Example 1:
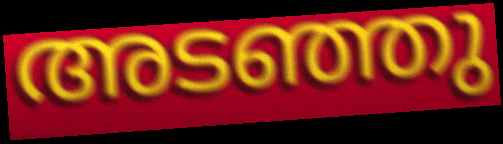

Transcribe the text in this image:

അടഞ്ഞു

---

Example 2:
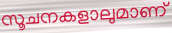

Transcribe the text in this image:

സൂചനകളാലുമാണ്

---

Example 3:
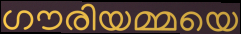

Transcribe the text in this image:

ഗൗരിയമ്മയെ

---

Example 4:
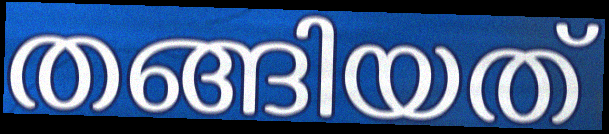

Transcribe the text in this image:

തങ്ങിയത്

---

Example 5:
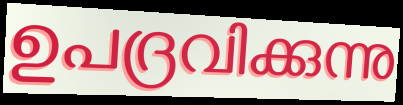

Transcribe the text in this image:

ഉപദ്രവിക്കുന്നു